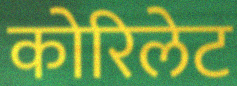
कोरिलेट